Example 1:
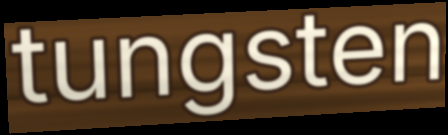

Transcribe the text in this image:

tungsten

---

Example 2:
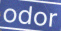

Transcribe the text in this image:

odor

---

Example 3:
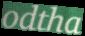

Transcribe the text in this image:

odtha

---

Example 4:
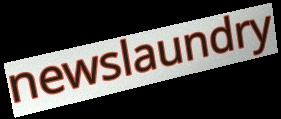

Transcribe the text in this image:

newslaundry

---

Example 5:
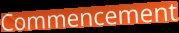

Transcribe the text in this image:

Commencement